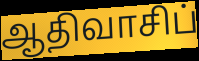
ஆதிவாசிப்